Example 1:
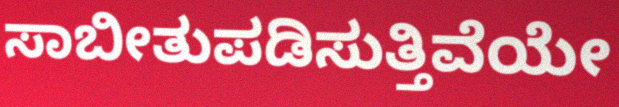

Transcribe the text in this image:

ಸಾಬೀತುಪಡಿಸುತ್ತಿವೆಯೇ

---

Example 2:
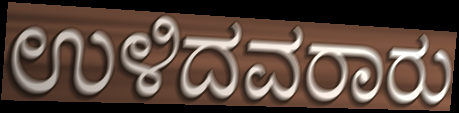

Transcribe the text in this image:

ಉಳಿದವರಾರು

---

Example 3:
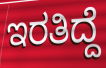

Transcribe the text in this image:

ಇರತಿದ್ದೆ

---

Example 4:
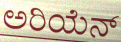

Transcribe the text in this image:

ಅರಿಯೆನ್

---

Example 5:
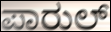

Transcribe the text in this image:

ಪಾರುಲ್